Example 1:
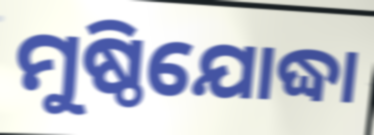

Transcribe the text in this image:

ମୁଷ୍ଠିଯୋଦ୍ଧା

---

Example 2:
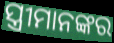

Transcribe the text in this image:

ସ୍ତ୍ରୀମାନଙ୍କର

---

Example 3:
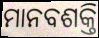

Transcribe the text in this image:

ମାନବଶକ୍ତି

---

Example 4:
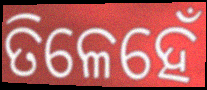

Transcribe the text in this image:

ତିଳେହେଁ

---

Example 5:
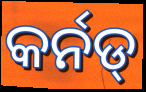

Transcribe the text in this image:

କର୍ନଡ୍